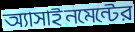
অ্যাসাইনমেন্টের